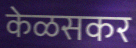
केळसकर